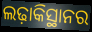
ଲଢ଼ାକିସ୍ଥାନର